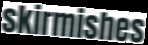
skirmishes